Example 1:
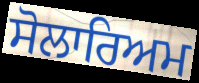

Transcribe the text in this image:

ਸੋਲਾਰਿਅਮ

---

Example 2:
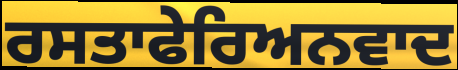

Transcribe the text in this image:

ਰਸਤਾਫੇਰਿਅਨਵਾਦ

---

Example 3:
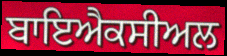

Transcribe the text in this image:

ਬਾਇਐਕਸੀਅਲ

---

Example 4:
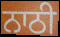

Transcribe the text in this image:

ਨਾਠੀ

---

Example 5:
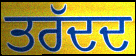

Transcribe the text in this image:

ਤਰੱਦਦ